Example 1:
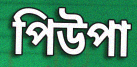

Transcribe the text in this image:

পিউপা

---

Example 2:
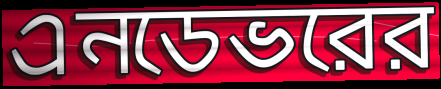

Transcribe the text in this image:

এনডেভরের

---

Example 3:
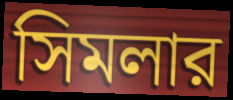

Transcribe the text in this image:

সিমলার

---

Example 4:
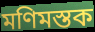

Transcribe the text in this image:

মণিমস্তক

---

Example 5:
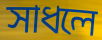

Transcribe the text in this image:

সাধলে